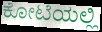
ಕೋಟೆಯಲ್ಲಿ